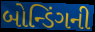
બોન્ડિંગની